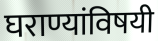
घराण्यांविषयी